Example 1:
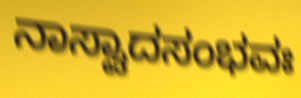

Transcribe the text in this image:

ನಾಸ್ವಾದಸಂಭವಃ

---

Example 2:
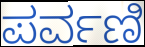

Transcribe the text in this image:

ಪರ್ವಣಿ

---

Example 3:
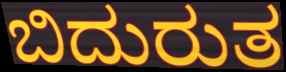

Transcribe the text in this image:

ಬಿದುರುತ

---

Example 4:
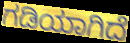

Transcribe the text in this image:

ಗಡಿಯಾಗಿದೆ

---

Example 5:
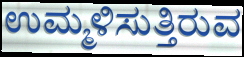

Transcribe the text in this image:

ಉಮ್ಮಳಿಸುತ್ತಿರುವ